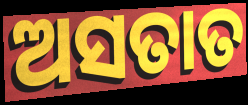
ଅସତାତ